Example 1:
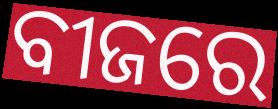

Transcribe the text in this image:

ବୀଜରେ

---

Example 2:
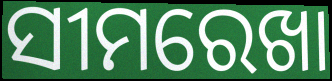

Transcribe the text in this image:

ସୀମରେଖା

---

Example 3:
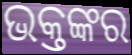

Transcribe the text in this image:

ଭକ୍ତଙ୍କର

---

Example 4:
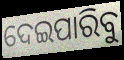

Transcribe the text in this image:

ଦେଇପାରିବୁ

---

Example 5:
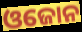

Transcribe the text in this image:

ଓଜୋନ